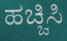
ಹಚ್ಚಿಸಿ